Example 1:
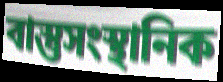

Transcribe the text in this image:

বাস্তুসংস্থানিক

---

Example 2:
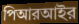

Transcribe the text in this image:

পিআরআইর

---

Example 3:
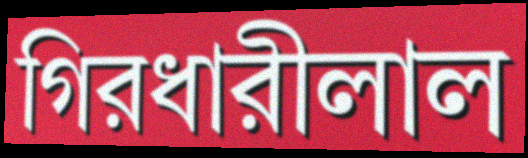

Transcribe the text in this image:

গিরধারীলাল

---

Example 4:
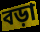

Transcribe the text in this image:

বড়া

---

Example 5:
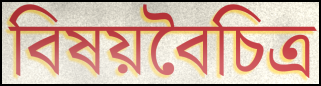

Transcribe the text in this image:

বিষয়বৈচিত্র